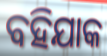
ବହିଯାକ